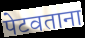
पेटवताना